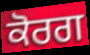
ਕੋਰਗ